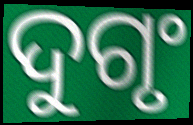
ଦୁଗୃଂ